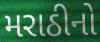
મરાઠીનો